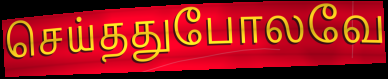
செய்ததுபோலவே